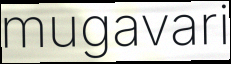
mugavari